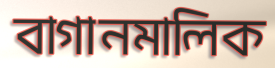
বাগানমালিক